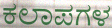
ಕಲಾಪಗಳ